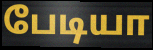
பேடியா